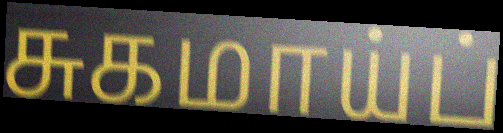
சுகமாய்ப்